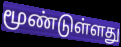
மூண்டுள்ளது